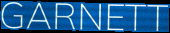
GARNETT